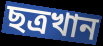
ছত্রখান